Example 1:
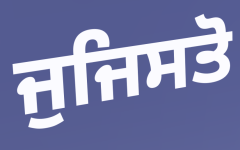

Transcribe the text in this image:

ਜੁਜਿਸਤੋ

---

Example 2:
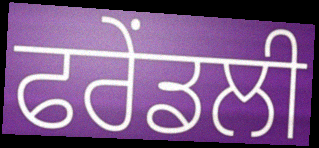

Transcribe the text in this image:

ਫਰੇਂਡਲੀ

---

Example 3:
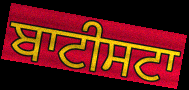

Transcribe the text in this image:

ਬਾਟੀਸਟਾ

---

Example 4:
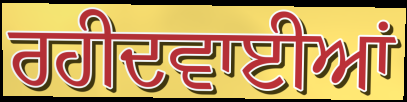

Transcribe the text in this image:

ਰਹੀਦਵਾਈਆਂ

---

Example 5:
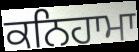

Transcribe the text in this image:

ਕਨਿਹਾਮਾ